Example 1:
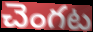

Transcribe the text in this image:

చెంగట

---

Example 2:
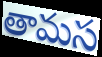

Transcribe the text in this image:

తామస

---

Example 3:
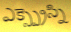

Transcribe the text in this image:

ఎక్స్ప్రెస్ని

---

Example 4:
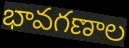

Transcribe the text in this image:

భావగణాల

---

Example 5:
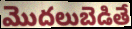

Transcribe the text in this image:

మొదలుబెడితే